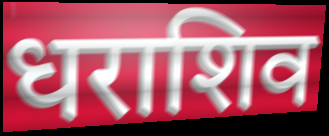
धराशिव